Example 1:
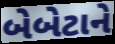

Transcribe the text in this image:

બેબેટાને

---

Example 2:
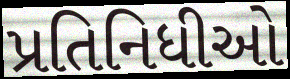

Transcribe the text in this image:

પ્રતિનિધીઓ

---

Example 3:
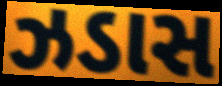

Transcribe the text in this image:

ઝડાસ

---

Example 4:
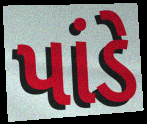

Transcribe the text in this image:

પાંડે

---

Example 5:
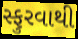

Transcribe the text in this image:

સ્ફુરવાથી